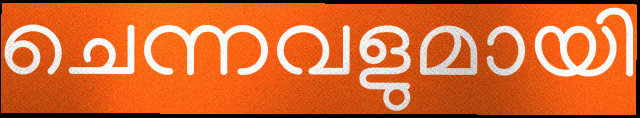
ചെന്നവളുമായി